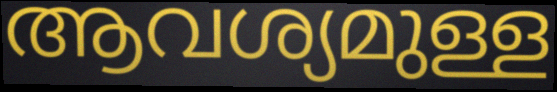
ആവശ്യമുള്ള